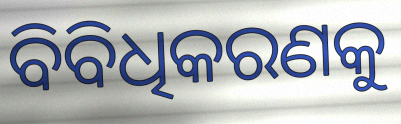
ବିବିଧିକରଣକୁ